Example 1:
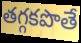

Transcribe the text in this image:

తగ్గకపొతే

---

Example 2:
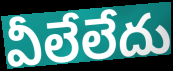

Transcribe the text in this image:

వీలేలేదు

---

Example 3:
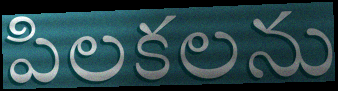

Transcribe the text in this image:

పిలకలను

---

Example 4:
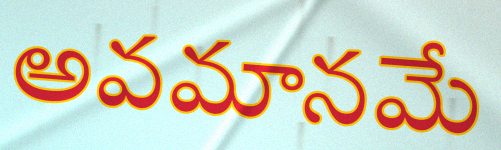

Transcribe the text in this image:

అవమానమే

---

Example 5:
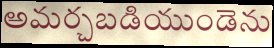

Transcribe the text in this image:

అమర్చబడియుండెను